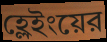
হ্লেইংয়ের